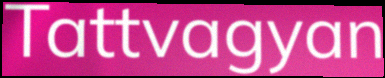
Tattvagyan